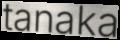
tanaka